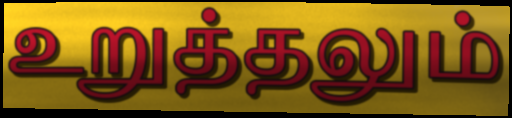
உறுத்தலும்